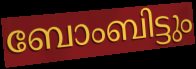
ബോംബിട്ടും